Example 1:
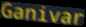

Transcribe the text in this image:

Ganivar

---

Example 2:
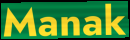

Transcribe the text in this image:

Manak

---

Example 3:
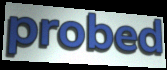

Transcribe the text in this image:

probed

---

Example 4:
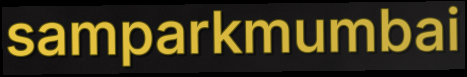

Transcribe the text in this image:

samparkmumbai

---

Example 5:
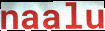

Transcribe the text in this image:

naalu